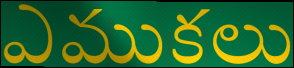
ఎముకలు